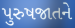
પુરુષજાતને